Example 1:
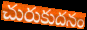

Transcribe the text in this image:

చురుకుదనం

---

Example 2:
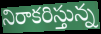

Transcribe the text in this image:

నిరాకరిస్తున్న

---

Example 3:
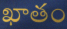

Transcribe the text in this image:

ఖాతం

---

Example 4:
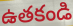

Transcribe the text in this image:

ఉతకండి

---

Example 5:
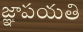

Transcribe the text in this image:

జ్ఞాపయతి